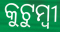
କୁଟୁମ୍ବୀ